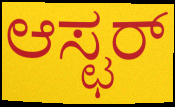
ಆಸ್ಟರ್